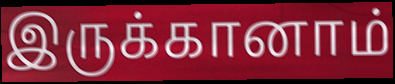
இருக்கானாம்